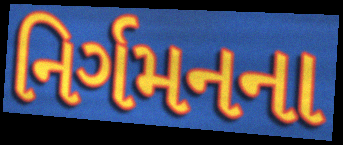
નિર્ગમનના